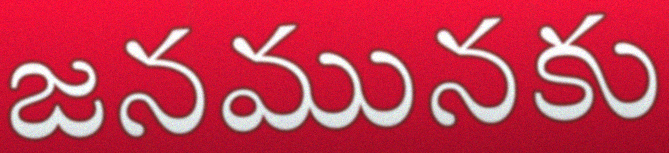
జనమునకు